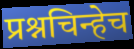
प्रश्नचिन्हेच